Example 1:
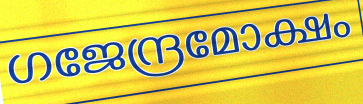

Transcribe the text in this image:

ഗജേന്ദ്രമോക്ഷം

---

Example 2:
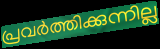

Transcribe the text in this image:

പ്രവർത്തിക്കുന്നില്ല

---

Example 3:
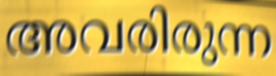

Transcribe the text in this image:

അവരിരുന്ന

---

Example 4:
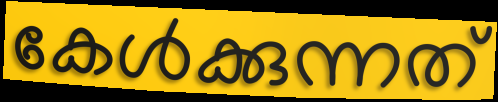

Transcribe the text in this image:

കേൾക്കുന്നത്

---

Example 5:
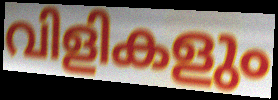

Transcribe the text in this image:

വിളികളും